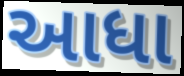
આધા